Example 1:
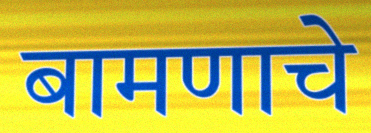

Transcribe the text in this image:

बामणाचे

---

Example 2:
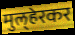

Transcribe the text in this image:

मुल्हेरकर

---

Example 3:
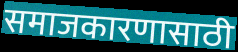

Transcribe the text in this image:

समाजकारणासाठी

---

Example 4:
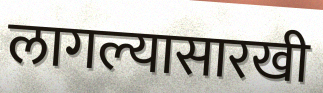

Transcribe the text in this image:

लागल्यासारखी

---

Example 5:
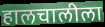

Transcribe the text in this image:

हालचालीला